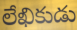
లేఖికుడు